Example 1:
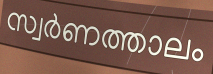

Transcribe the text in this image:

സ്വർണത്താലം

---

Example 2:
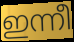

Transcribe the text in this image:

ഇന്നീ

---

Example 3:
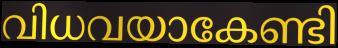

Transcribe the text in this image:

വിധവയാകേണ്ടി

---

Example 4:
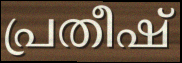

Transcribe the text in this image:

പ്രതീഷ്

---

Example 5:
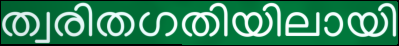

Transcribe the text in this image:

ത്വരിതഗതിയിലായി